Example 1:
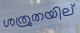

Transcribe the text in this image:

ശത്രുതയില്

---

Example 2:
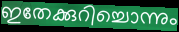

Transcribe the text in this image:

ഇതേക്കുറിച്ചൊന്നും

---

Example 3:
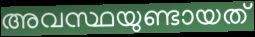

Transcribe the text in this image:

അവസ്ഥയുണ്ടായത്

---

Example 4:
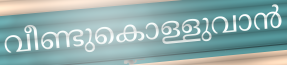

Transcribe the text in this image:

വീണ്ടുകൊള്ളുവാൻ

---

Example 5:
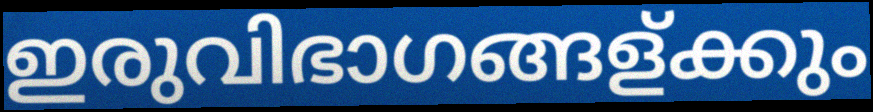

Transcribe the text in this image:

ഇരുവിഭാഗങ്ങള്ക്കും